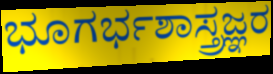
ಭೂಗರ್ಭಶಾಸ್ತ್ರಜ್ಞರ